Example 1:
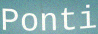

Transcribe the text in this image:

Ponti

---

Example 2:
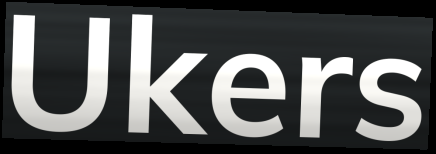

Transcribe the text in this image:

Ukers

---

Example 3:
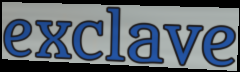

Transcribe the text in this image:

exclave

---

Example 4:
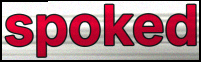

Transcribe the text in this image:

spoked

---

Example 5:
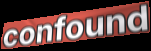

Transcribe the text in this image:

confound